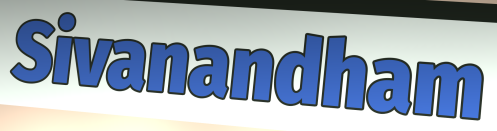
Sivanandham